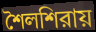
শৈলশিরায়